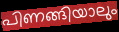
പിണങ്ങിയാലും